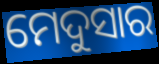
ମେଦୁସାର